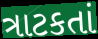
ત્રાટકતાં